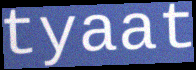
tyaat